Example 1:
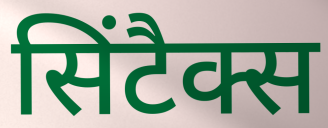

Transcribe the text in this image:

सिंटैक्स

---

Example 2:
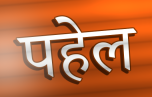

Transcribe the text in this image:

पहेल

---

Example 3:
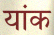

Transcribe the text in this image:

यांक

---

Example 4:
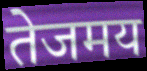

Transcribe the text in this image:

तेजमय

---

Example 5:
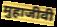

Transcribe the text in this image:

मुहाजीवी